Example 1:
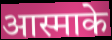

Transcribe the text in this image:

आस्माके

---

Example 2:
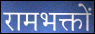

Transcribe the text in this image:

रामभक्तों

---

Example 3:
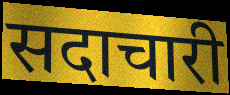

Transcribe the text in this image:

सदाचारी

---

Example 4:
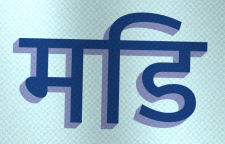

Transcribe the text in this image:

मडि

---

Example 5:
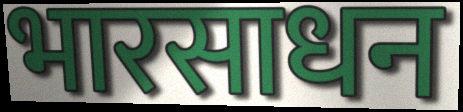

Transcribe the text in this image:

भारसाधन